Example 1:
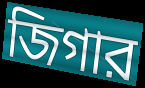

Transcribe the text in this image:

জিগার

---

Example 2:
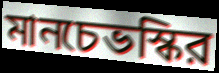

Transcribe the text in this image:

মানচেভস্কির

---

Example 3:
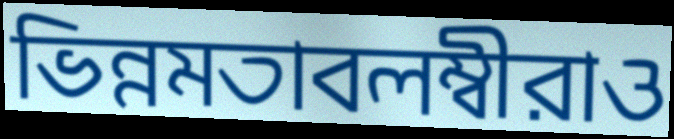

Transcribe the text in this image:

ভিন্নমতাবলম্বীরাও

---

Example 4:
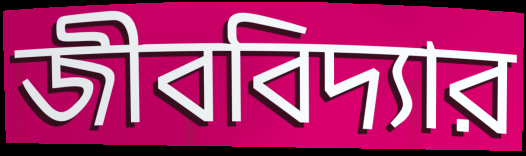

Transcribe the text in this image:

জীববিদ্যার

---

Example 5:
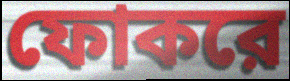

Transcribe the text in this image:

ফোকরে